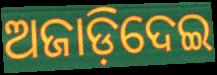
ଅଜାଡ଼ିଦେଇ